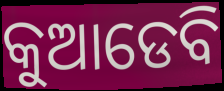
କୁଆଡେବି